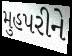
મુહપરીને